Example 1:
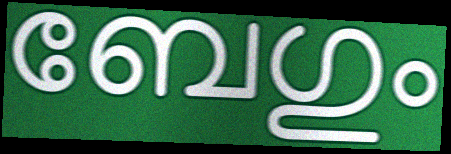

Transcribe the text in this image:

ബേഗും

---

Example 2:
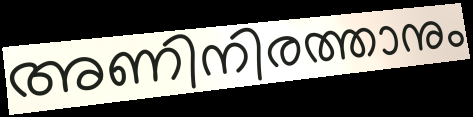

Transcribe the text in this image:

അണിനിരത്താനും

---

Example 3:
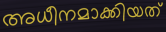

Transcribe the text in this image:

അധീനമാക്കിയത്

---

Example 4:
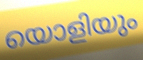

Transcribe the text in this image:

യൊളിയും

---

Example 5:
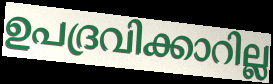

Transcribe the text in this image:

ഉപദ്രവിക്കാറില്ല